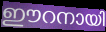
ഈറനായി